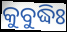
କୁବୁଦ୍ଧିଃ